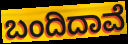
ಬಂದಿದಾವೆ